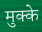
मुक्‍के